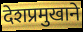
देशप्रमुखाने